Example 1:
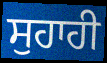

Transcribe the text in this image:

ਸੁਹਾਹੀ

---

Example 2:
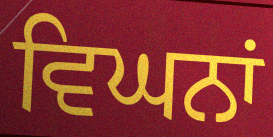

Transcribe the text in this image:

ਵਿਘਨਾਂ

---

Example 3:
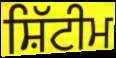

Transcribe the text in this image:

ਸ਼ਿੱਟੀਮ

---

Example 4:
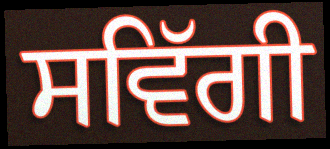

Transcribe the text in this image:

ਸਵਿੱਗੀ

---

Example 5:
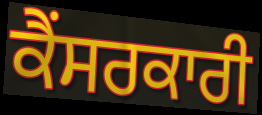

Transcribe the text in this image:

ਕੈਂਸਰਕਾਰੀ